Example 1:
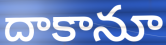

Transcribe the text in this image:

దాకానూ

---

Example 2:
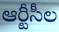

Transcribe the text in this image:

ఆర్టీసీల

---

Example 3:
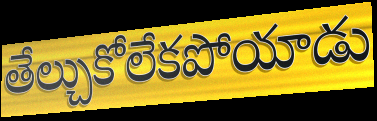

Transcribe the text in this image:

తేల్చుకోలేకపోయాడు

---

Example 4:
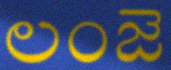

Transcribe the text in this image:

లంజె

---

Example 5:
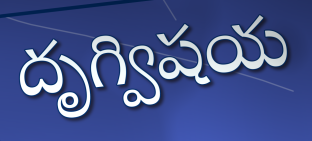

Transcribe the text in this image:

దృగ్విషయ